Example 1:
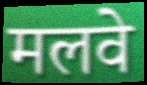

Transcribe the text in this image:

मलवे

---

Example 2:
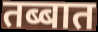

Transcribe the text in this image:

तब्बात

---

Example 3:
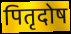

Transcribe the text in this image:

पितृदोष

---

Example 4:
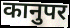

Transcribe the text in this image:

कानुपर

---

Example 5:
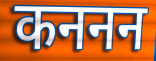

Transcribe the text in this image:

कननन